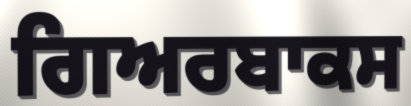
ਗਿਅਰਬਾਕਸ